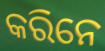
କରିନେ